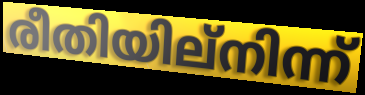
രീതിയില്നിന്ന്